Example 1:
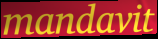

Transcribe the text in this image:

mandavit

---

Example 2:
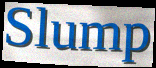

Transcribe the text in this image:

Slump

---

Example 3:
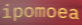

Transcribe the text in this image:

ipomoea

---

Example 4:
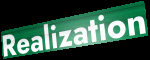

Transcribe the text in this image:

Realization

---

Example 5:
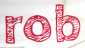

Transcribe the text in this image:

rob